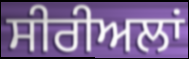
ਸੀਰੀਅਲਾਂ